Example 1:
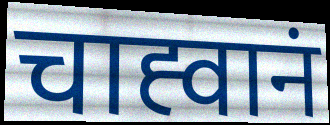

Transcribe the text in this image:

चाह्वानं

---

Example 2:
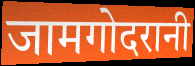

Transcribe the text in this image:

जामगोदरानी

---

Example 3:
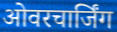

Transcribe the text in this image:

ओवरचार्जिंग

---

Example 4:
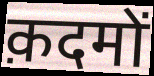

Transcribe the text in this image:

क़दमों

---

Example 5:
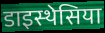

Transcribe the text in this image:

डाइस्थेसिया